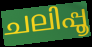
ചലിപ്പൂ